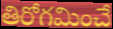
తిరోగమించే